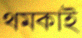
থমকাই